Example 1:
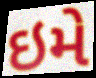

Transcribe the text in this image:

ઇમે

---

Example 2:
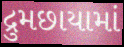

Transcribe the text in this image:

દ્રુમછાયામાં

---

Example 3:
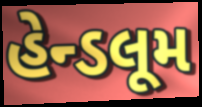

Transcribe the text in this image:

હેન્ડલૂમ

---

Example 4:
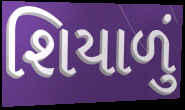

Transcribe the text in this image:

શિયાળું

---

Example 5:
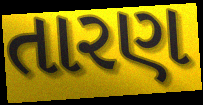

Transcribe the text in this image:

તારણ